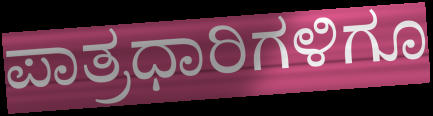
ಪಾತ್ರಧಾರಿಗಳಿಗೂ